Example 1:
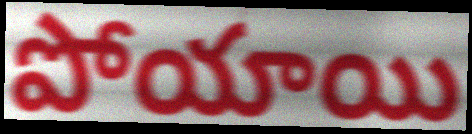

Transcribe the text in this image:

పోయాయి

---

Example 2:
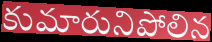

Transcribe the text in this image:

కుమారునిపోలిన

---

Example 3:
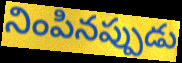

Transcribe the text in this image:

నింపినప్పుడు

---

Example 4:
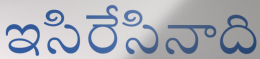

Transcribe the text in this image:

ఇసిరేసినాది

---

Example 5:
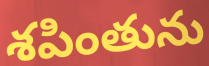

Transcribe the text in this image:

శపింతును